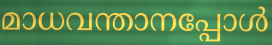
മാധവന്താനപ്പോൾ